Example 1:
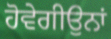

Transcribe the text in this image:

ਹੋਵੇਗੀਉਨਾਂ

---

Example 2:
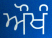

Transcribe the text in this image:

ਔਖੰ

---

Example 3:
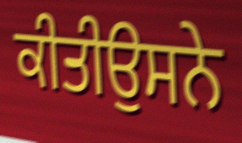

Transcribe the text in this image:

ਕੀਤੀਉਸਨੇ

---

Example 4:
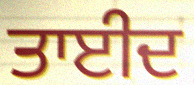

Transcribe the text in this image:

ਤਾਈਦ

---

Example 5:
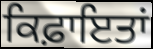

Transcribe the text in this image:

ਕਿਫ਼ਾਇਤਾਂ